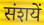
संशयें